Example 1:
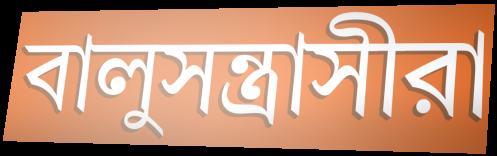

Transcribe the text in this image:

বালুসন্ত্রাসীরা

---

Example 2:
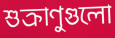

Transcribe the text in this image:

শুক্রাণুগুলো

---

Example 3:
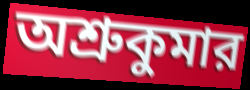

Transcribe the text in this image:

অশ্রুকুমার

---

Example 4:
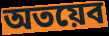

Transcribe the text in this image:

অতয়েব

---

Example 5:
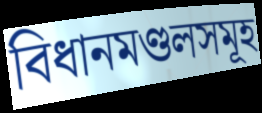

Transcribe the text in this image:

বিধানমণ্ডলসমূহ